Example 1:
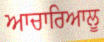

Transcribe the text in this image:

ਆਚਾਰਿਆਲੂ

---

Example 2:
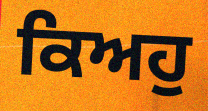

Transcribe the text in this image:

ਕਿਅਹੁ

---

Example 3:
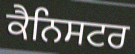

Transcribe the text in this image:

ਕੈਨਿਸਟਰ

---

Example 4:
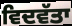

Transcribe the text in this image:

ਵਿਦਵੱਤਾ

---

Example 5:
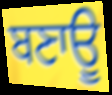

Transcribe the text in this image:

ਬਣਾਊ